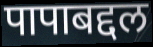
पापाबद्दल